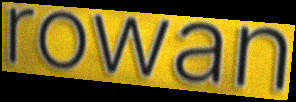
rowan